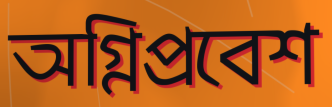
অগ্নিপ্রবেশ